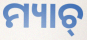
ମ୍ୟାଚ୍